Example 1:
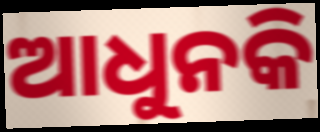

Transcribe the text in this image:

ଆଧୁନକି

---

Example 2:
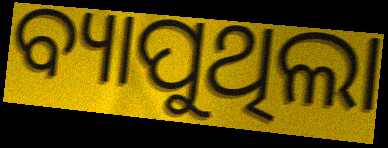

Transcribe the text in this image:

ବ୍ୟାପୁଥିଲା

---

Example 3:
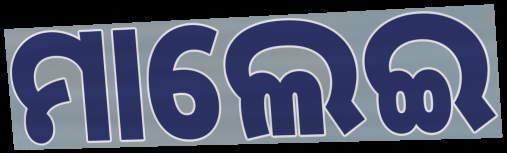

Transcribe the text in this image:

ମାଲେଇ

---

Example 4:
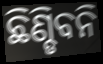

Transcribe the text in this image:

ଛିଣ୍ଡିବନି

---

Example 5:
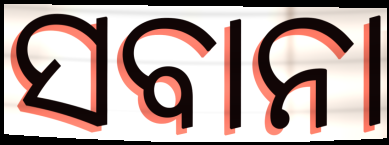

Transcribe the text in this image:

ସବାନା